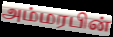
அம்மரபின்